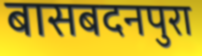
बासबदनपुरा